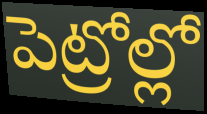
పెట్రోల్లో